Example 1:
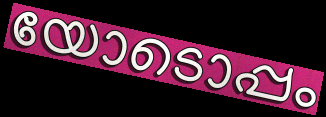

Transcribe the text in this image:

യോടൊപ്പം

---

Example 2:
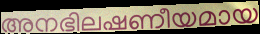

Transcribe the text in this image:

അനഭിലഷണീയമായ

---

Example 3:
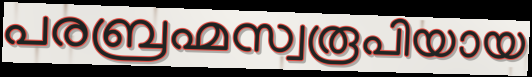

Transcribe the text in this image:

പരബ്രഹ്മസ്വരൂപിയായ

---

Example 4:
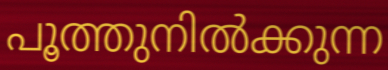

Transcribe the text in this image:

പൂത്തുനിൽക്കുന്ന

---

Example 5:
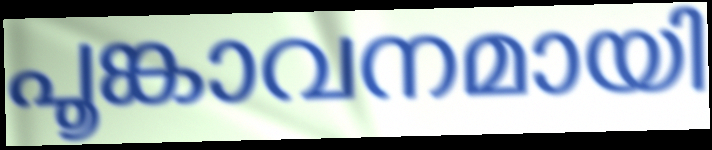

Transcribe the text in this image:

പൂങ്കാവനമായി